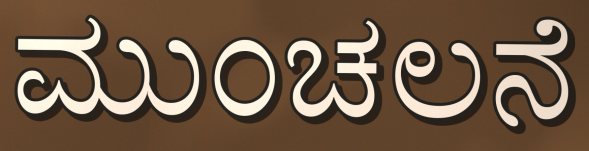
ಮುಂಚಲನೆ